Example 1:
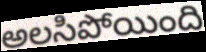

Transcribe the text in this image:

అలసిపోయింది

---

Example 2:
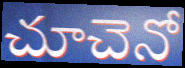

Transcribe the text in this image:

చూచెనో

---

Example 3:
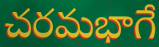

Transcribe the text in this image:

చరమభాగే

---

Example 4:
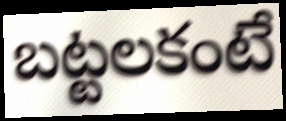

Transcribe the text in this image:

బట్టలకంటే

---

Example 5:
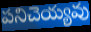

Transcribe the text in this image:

పనిచెయ్యవు